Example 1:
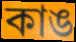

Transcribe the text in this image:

কাঙ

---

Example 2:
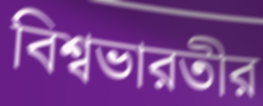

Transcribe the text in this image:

বিশ্বভারতীর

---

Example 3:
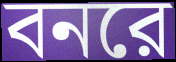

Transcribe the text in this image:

বনরে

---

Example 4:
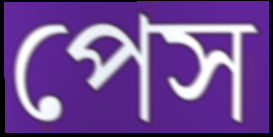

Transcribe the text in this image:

পেস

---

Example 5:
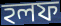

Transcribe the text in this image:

হলফ